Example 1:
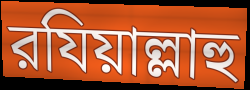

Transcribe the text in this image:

রযিয়াল্লাহু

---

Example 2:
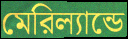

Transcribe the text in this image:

মেরিল্যান্ডে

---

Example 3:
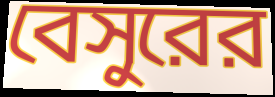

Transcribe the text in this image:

বেসুরের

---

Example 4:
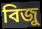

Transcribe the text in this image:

বিজু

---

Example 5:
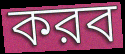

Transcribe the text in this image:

করব